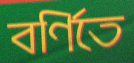
বর্ণিতে